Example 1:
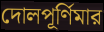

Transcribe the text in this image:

দোলপূর্ণিমার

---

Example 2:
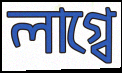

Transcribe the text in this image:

লাগ্বে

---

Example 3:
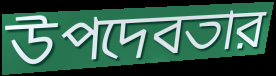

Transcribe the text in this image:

উপদেবতার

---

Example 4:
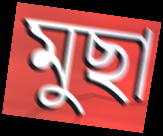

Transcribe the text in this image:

মুছা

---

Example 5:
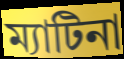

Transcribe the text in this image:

ম্যাটিনা